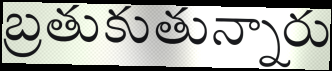
బ్రతుకుతున్నారు